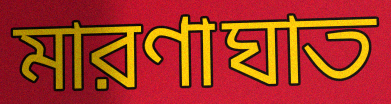
মারণাঘাত